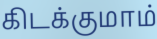
கிடக்குமாம்